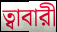
ত্বাবারী